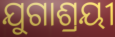
ଯୁଗାଶ୍ରୟୀ